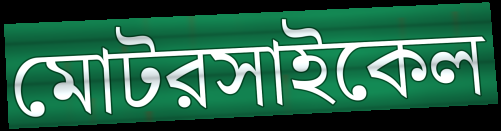
মোটরসাইকেল